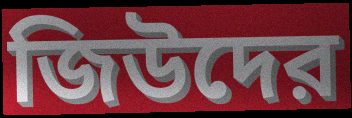
জিউদের